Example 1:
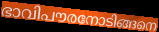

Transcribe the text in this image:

ഭാവിപൗരനോടിങ്ങനെ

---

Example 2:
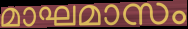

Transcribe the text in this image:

മാഘമാസം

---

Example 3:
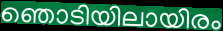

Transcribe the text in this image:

ഞൊടിയിലായിരം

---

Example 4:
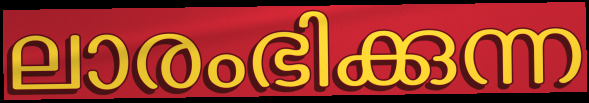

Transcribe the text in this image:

ലാരംഭിക്കുന്ന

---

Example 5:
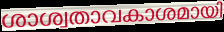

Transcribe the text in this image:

ശാശ്വതാവകാശമായി